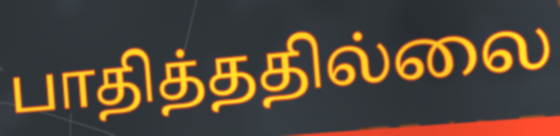
பாதித்ததில்லை